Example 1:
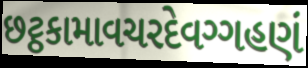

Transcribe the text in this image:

છટ્ઠકામાવચરદેવગ્ગહણં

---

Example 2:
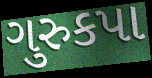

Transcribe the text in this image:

ગુરુકપા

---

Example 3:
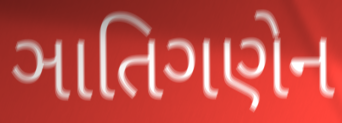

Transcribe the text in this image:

ઞાતિગણેન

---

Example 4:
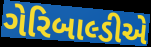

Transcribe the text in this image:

ગેરિબાલ્ડીએ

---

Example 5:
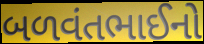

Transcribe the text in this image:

બળવંતભાઈનો